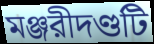
মঞ্জরীদণ্ডটি